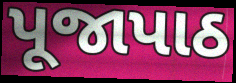
પૂજાપાઠ